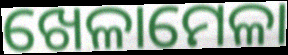
ଖେଳାମେଳା